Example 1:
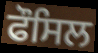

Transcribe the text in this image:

ਫੌਸਿਲ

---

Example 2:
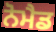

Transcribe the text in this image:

ਨੋਮੈਡ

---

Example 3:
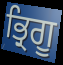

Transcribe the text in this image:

ਭ੍ਰਿਗੂ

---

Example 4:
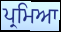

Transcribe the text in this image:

ਪ੍ਰਮਿਆ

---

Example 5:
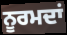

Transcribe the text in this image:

ਨੂਰਮਦਾਂ